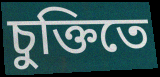
চুক্তিতে